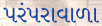
પરંપરાવાળા